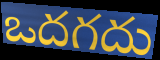
ఒదగదు